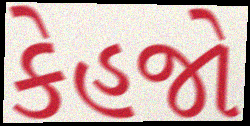
કેહજો